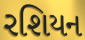
રશિયન